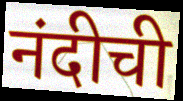
नंदीची